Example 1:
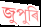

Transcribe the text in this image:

জুপুৰি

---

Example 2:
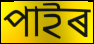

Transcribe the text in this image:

পাইৰ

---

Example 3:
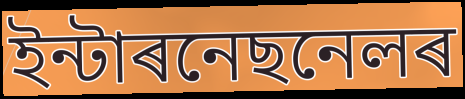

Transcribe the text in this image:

ইন্টাৰনেছনেলৰ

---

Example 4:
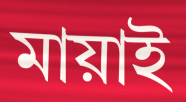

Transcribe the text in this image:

মায়াই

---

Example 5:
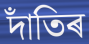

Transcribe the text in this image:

দাঁতিৰ